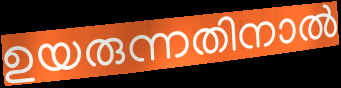
ഉയരുന്നതിനാൽ